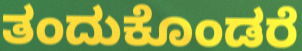
ತಂದುಕೊಂಡರೆ